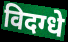
विदग्धे